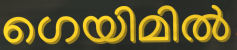
ഗെയിമിൽ